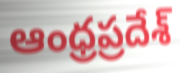
ఆంధ్రప్రదేశ్